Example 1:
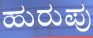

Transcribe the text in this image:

ಹುರುಪು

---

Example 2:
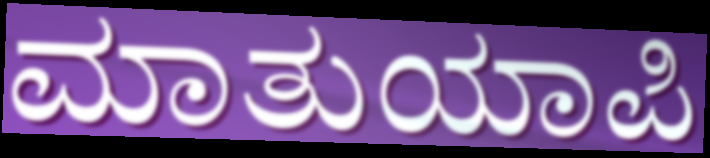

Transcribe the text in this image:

ಮಾತುಯಾಪಿ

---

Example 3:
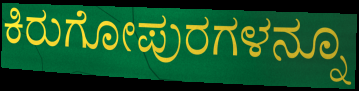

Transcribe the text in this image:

ಕಿರುಗೋಪುರಗಳನ್ನೂ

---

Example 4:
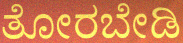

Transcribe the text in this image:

ತೋರಬೇಡಿ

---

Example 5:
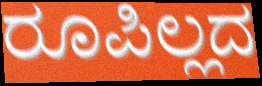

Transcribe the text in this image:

ರೂಪಿಲ್ಲದ